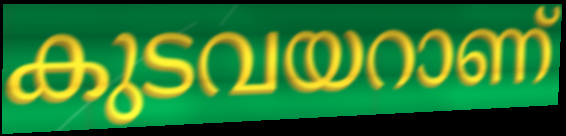
കുടവയറാണ്